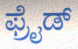
ಫ್ರೈಡ್